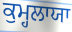
ਕੁਮ੍ਹਲਾਯਾ